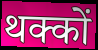
थक्कों